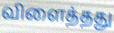
விளைத்தது